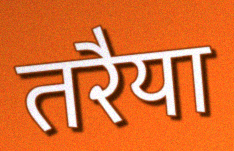
तरैया